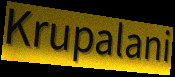
Krupalani